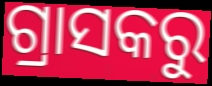
ଗ୍ରାସକରୁ